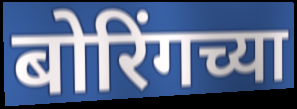
बोरिंगच्या